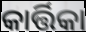
କାର୍ତ୍ତିକା